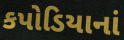
કપોડિયાનાં